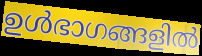
ഉൾഭാഗങ്ങളിൽ